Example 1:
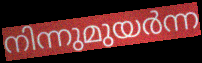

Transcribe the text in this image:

നിന്നുമുയർന്ന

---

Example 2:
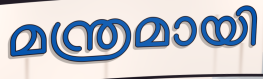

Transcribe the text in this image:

മന്ത്രമായി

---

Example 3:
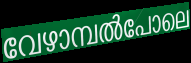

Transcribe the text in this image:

വേഴാമ്പൽപോലെ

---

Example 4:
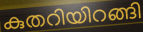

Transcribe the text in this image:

കുതറിയിറങ്ങി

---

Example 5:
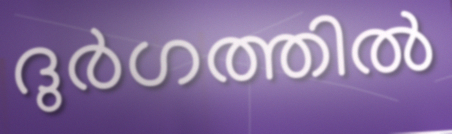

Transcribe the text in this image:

ദുർഗത്തിൽ